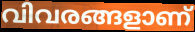
വിവരങ്ങളാണ്